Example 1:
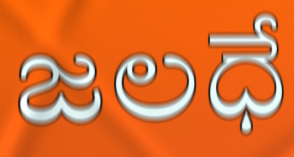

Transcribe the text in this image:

జలధే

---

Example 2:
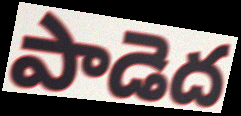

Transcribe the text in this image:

పాడెద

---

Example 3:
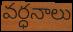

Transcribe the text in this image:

వర్ధనాలు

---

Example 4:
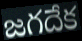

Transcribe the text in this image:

జగదేక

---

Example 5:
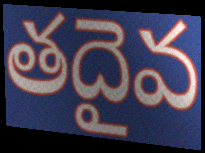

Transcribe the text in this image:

తదైవ